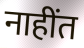
नाहींत